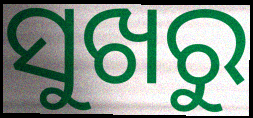
ସୁଖରୁ